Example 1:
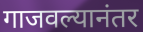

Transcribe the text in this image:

गाजवल्यानंतर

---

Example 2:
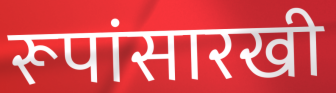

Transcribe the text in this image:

रूपांसारखी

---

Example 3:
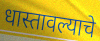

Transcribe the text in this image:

धास्तावल्याचे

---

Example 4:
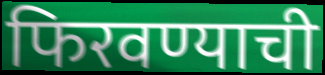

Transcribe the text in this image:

फिरवण्याची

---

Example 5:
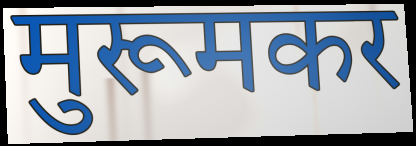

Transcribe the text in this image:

मुरूमकर